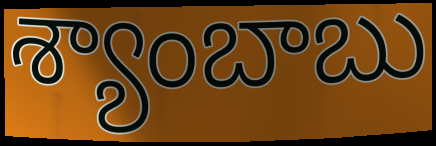
శ్యాంబాబు